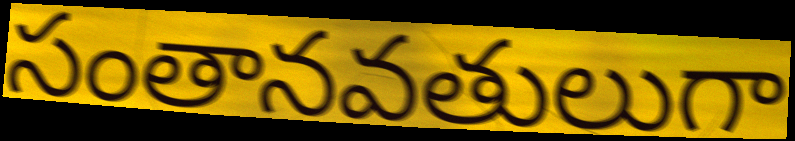
సంతానవతులుగా